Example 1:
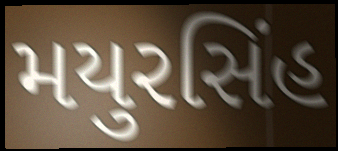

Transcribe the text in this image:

મયુરસિંહ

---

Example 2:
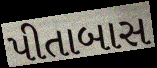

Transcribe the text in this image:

પીતાબાસ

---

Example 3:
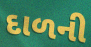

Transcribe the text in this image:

દાળની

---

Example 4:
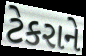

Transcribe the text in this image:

ટેકરાને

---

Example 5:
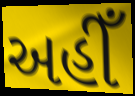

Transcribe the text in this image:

અહીઁ